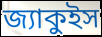
জ্যাকুইস